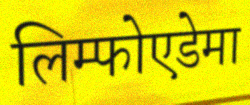
लिम्फोएडेमा